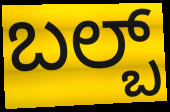
ಬಲ್ಬ್